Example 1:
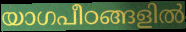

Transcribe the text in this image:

യാഗപീഠങ്ങളിൽ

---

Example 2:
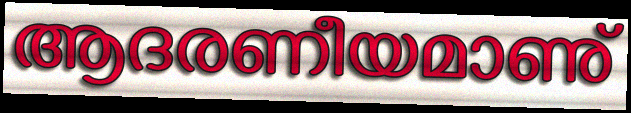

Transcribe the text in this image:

ആദരണീയമാണു്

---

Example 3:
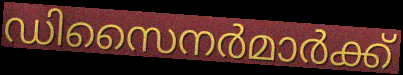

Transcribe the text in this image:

ഡിസൈനർമാർക്ക്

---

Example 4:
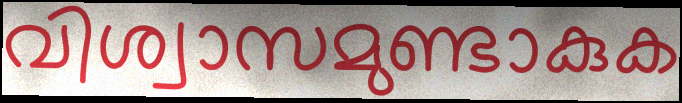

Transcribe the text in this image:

വിശ്വാസമുണ്ടാകുക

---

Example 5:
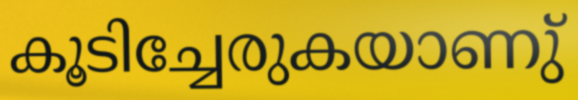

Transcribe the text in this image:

കൂടിച്ചേരുകയാണു്